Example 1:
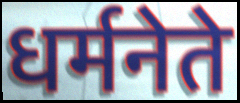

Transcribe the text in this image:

धर्मनेते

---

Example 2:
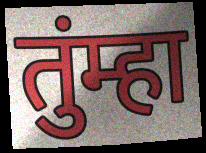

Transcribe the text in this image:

तुंम्हा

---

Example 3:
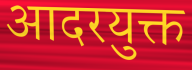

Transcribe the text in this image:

आदरयुक्त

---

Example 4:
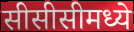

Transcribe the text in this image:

सीसीसीमध्ये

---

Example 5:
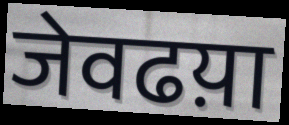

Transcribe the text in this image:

जेवढय़ा